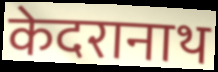
केदरानाथ